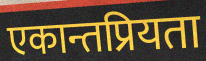
एकान्तप्रियता